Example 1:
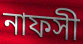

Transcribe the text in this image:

নাফসী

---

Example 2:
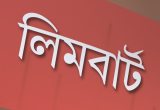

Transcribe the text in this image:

লিমবার্ট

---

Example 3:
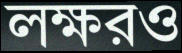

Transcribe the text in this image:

লক্ষরও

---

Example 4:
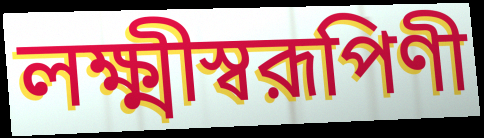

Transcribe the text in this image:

লক্ষ্মীস্বরূপিণী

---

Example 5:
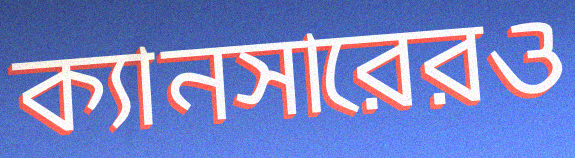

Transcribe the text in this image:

ক্যানসারেরও